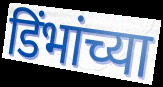
डिंभांच्या